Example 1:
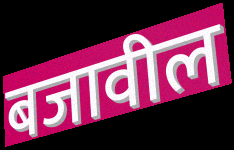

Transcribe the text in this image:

बजावील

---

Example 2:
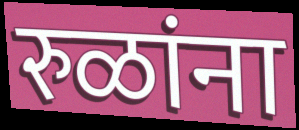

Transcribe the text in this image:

रुळांना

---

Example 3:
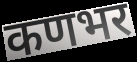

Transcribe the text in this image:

कणभर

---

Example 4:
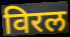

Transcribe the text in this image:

विरल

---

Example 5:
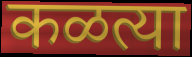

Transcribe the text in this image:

कळत्या